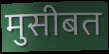
मुसीबत